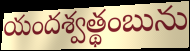
యందశ్వత్థంబును